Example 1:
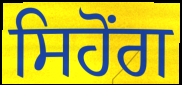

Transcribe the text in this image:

ਸਿਹੋਂਗ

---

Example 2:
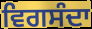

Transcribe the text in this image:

ਵਿਗਸੰਦਾ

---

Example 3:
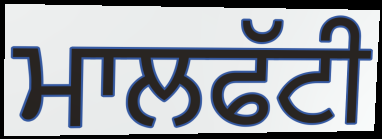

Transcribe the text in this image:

ਮਾਲਫੱਟੀ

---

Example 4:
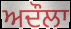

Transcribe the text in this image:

ਅਦੌਲਾ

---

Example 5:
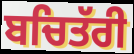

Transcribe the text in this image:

ਬਚਿਤੱਰੀ